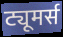
ट्यूमर्स